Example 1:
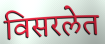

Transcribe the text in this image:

विसरलेत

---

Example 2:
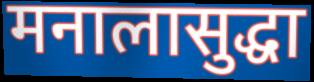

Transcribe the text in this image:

मनालासुद्धा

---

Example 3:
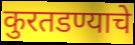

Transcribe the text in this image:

कुरतडण्याचे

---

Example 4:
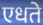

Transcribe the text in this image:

एधते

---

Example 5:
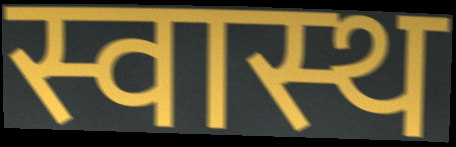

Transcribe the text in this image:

स्वास्थ